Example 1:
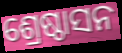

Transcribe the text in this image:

ଶ୍ରେଷ୍ଠାସନ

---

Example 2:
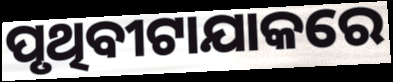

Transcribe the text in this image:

ପୃଥିବୀଟାଯାକରେ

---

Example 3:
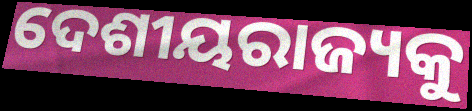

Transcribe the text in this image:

ଦେଶୀୟରାଜ୍ୟକୁ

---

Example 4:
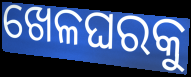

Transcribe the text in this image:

ଖେଳଘରକୁ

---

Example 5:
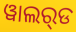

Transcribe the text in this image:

ୱାଲର୍‌ଡ